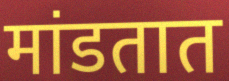
मांडतात